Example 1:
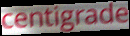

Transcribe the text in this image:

centigrade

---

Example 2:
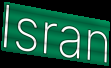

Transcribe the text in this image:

Isran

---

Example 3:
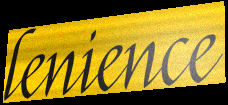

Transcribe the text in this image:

lenience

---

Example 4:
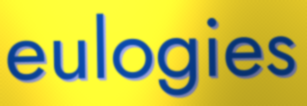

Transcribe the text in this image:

eulogies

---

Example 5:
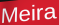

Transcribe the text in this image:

Meira